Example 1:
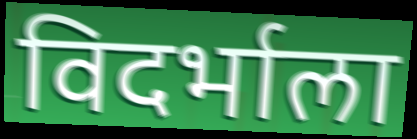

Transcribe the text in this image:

विदर्भाला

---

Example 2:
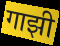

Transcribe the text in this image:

गाझी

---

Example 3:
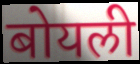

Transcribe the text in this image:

बोयली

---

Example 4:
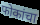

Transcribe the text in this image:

फोकांचा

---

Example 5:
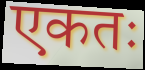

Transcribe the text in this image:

एकतः